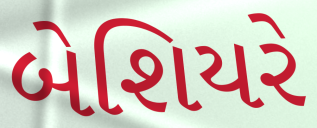
બેશિયરે